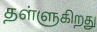
தள்ளுகிறது